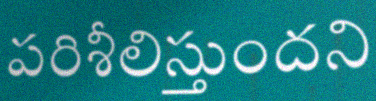
పరిశీలిస్తుందని